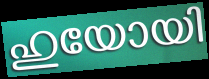
ഹുയോയി